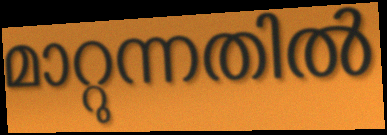
മാറ്റുന്നതിൽ